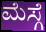
ಮೆಸ್ಗೆ